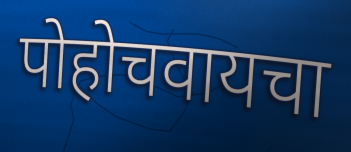
पोहोचवायचा